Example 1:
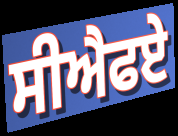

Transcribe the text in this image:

ਸੀਐਫਏ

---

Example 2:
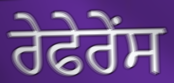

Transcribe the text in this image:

ਰੇਫੇਰੇਂਸ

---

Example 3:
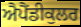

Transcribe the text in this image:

ਐਪੈਂਡੀਕੁਲਰ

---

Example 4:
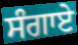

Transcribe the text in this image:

ਸੰਗਾਏ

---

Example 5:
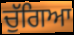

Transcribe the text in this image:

ਚੁੱਗਿਆ